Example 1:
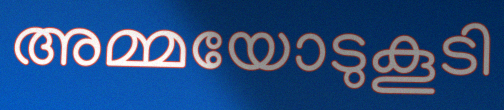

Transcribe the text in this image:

അമ്മയോടുകൂടി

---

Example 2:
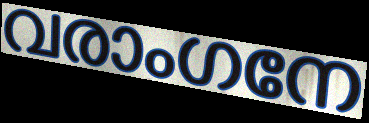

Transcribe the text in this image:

വരാംഗനേ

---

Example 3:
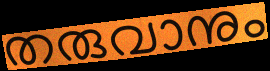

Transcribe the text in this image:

തരുവാനും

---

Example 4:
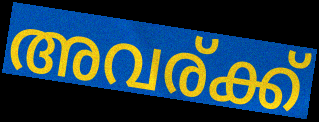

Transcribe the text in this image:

അവര്ക്ക്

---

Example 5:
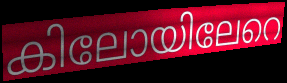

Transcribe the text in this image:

കിലോയിലേറെ